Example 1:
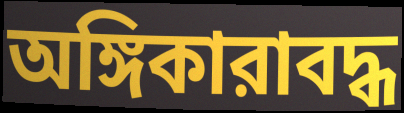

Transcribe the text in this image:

অঙ্গিকারাবদ্ধ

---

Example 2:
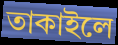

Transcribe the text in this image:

তাকাইলে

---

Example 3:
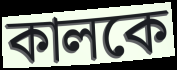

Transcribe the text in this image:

কালকে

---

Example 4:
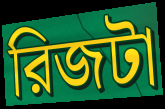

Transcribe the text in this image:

রিজটা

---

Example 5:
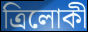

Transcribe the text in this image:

ত্রিলোকী